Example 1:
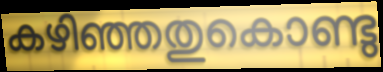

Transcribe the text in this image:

കഴിഞ്ഞതുകൊണ്ടു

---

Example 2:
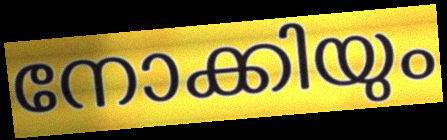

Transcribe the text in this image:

നോക്കിയും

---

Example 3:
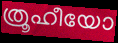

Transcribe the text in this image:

ത്രൂഹീയോ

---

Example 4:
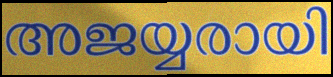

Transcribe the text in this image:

അജയ്യരായി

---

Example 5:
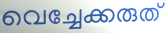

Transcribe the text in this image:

വെച്ചേക്കരുത്